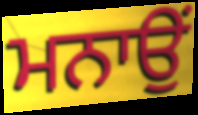
ਮਨਾਉਂ